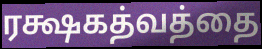
ரக்ஷகத்வத்தை